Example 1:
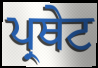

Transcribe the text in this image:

ਪ੍ਰਥੇਟ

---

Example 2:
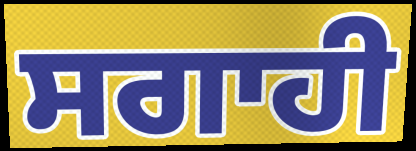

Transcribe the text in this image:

ਸਗਾਹੀ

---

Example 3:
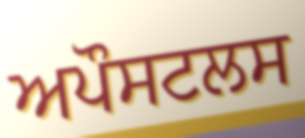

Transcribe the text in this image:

ਅਪੌਸਟਲਸ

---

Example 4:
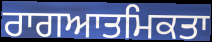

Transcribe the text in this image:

ਰਾਗਆਤਮਿਕਤਾ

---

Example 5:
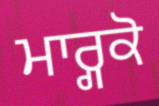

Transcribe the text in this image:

ਮਾਰ੍ਗਕੋ